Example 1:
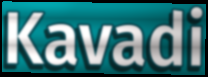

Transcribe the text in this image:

Kavadi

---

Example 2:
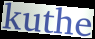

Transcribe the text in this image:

kuthe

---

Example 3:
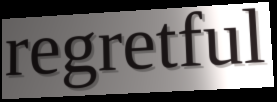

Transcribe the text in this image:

regretful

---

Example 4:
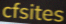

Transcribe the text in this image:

cfsites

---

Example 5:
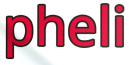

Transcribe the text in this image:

pheli